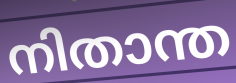
നിതാന്ത